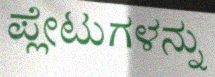
ಪ್ಲೇಟುಗಳನ್ನು